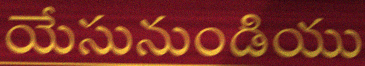
యేసునుండియు